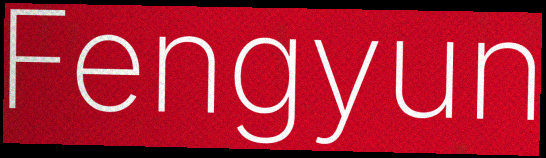
Fengyun